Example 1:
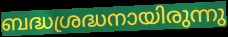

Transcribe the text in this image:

ബദ്ധശ്രദ്ധനായിരുന്നു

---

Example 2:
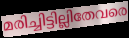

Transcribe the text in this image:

മരിച്ചിട്ടില്ലിതേവരെ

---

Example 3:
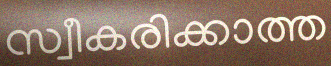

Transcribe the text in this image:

സ്വീകരിക്കാത്ത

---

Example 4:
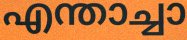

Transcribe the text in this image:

എന്താച്ചാ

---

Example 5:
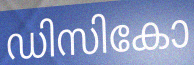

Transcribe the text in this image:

ഡിസികോ